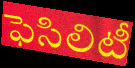
ఫెసిలిటీ